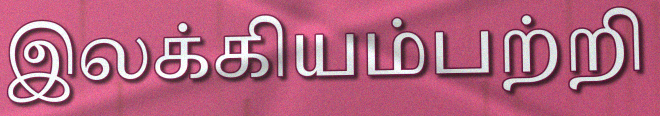
இலக்கியம்பற்றி